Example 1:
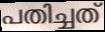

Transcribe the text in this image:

പതിച്ചത്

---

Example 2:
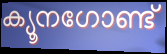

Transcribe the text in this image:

ക്യൂനഗോണ്ട്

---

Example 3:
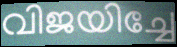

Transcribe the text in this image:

വിജയിച്ചേ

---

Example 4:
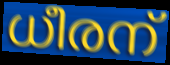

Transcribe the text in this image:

ധീരന്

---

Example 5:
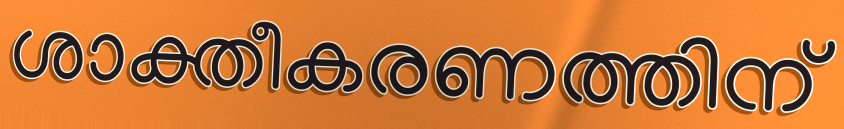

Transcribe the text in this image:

ശാക്തീകരണത്തിന്